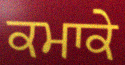
ਕਮਾਕੇ